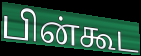
பின்கூட